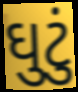
ઘુટું